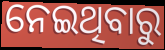
ନେଇଥିବାରୁ